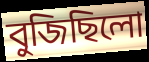
বুজিছিলো